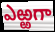
ఎఱ్ఱగా